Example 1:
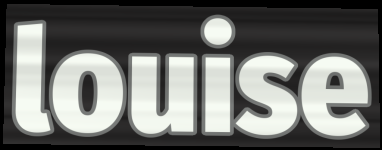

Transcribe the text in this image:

louise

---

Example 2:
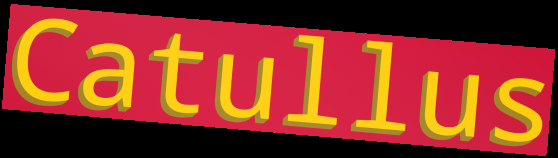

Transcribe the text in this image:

Catullus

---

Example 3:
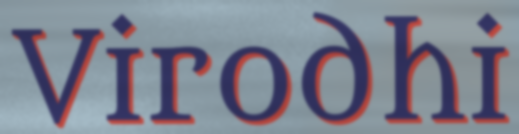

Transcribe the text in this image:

Virodhi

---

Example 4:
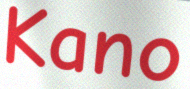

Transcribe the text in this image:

Kano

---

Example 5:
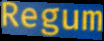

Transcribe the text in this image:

Regum